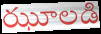
ఝూలడి